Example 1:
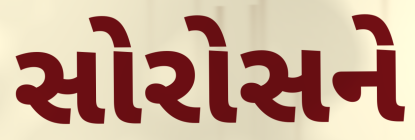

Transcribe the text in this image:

સોરોસને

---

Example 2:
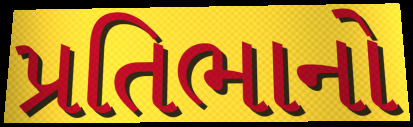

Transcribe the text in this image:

પ્રતિભાનો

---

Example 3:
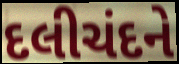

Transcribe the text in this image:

દલીચંદને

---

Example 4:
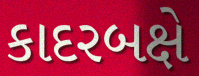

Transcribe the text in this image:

કાદરબક્ષે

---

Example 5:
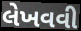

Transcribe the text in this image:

લેખવવી